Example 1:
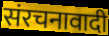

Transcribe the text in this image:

संरचनावादी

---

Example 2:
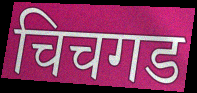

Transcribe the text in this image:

चिचगड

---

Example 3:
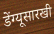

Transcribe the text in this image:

डेंग्यूसारखी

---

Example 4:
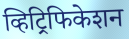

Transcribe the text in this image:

व्हिट्रिफिकेशन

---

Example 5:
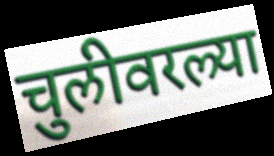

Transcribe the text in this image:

चुलीवरल्या